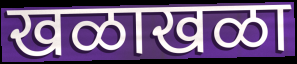
खळाखळा